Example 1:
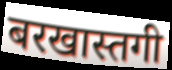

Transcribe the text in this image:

बरखास्तगी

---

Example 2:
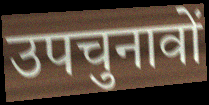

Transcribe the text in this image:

उपचुनावों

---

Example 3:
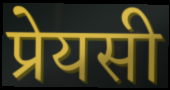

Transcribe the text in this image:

प्रेयसी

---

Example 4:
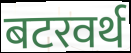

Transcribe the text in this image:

बटरवर्थ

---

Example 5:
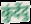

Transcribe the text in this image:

कुंदेंदु